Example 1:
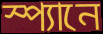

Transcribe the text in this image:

স্প্যানে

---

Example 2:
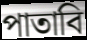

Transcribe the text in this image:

পাতাবি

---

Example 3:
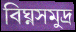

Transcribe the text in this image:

বিঘ্নসমুদ্র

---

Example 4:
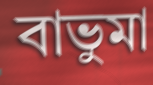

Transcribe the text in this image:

বাভুমা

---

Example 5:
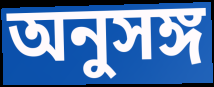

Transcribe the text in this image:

অনুসঙ্গ